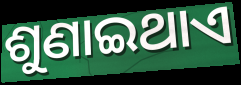
ଶୁଣାଇଥାଏ